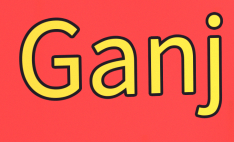
Ganj